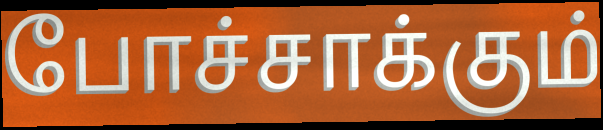
போச்சாக்கும்